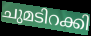
ചുമടിറക്കി